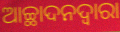
ଆଚ୍ଛାଦନଦ୍ୱାରା